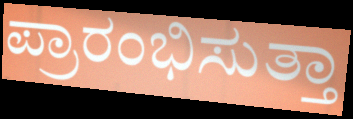
ಪ್ರಾರಂಭಿಸುತ್ತಾ